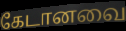
கேடானவை